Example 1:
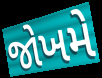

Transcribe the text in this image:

જોખમે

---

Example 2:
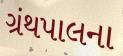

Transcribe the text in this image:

ગ્રંથપાલના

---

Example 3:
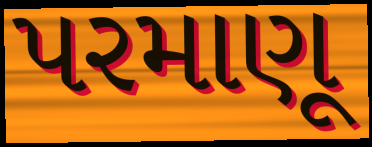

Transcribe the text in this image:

પરમાણૂ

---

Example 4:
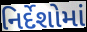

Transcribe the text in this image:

નિર્દેશોમાં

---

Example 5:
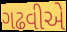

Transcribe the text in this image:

ગઢવીએ